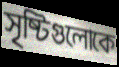
সৃষ্টিগুলোকে